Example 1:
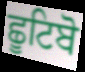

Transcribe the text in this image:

ਛੂਟਿਬੋ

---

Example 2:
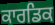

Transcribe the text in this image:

ਕਾਰਡਿਕ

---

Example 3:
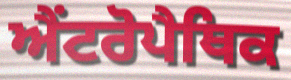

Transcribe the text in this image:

ਐਂਟਰੋਪੈਥਿਕ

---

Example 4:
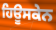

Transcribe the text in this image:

ਹਿਊਸਕੇਨ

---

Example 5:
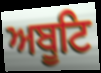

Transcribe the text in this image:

ਅਬੂਟਿ